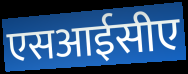
एसआईसीए